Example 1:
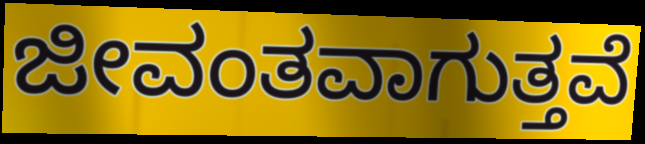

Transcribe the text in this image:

ಜೀವಂತವಾಗುತ್ತವೆ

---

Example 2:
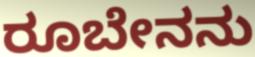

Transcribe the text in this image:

ರೂಬೇನನು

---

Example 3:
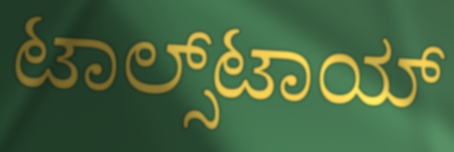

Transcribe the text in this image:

ಟಾಲ್ಸ್‌ಟಾಯ್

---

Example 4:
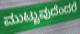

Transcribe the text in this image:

ಮುಟ್ಟುವುದೆಂದರೆ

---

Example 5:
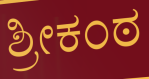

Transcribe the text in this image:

ಶ್ರೀಕಂಠ